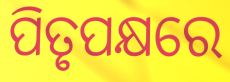
ପିତୃପକ୍ଷରେ